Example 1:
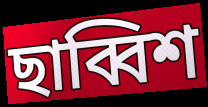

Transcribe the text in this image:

ছাব্বিশ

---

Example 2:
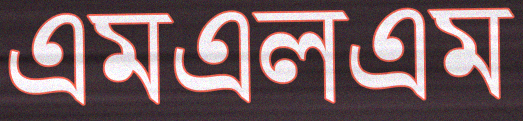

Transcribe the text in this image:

এমএলএম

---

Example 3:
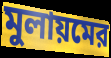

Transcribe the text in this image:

মুলায়মের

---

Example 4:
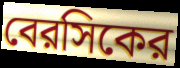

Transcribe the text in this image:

বেরসিকের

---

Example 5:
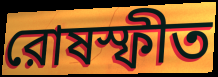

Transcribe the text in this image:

রোষস্ফীত